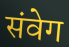
संवेग